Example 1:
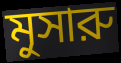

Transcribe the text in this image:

মুসারু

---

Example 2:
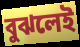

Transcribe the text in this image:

বুঝলেই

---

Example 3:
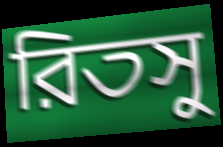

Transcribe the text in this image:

রিতসু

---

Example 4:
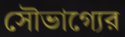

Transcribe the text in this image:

সৌভাগ্যের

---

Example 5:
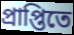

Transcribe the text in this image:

প্রাপ্তিতে